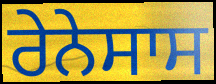
ਰੇਨੇਸਾਸ